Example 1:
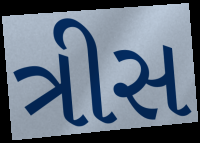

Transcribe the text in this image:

ત્રીસ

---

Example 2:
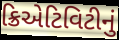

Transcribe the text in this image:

ક્રિએટિવિટીનું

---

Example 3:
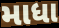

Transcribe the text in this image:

માધા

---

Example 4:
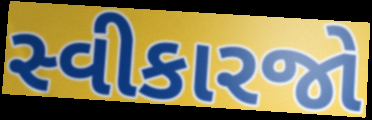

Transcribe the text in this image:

સ્વીકારજો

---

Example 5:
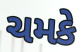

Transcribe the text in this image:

ચમકે